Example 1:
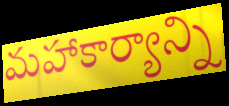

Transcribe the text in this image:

మహాకార్యాన్ని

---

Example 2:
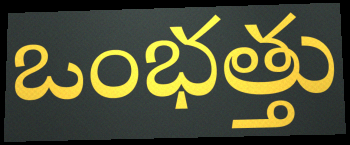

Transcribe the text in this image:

ఒంభత్తు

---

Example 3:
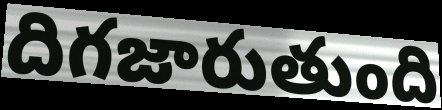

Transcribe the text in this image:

దిగజారుతుంది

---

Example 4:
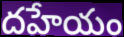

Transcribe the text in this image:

దహేయం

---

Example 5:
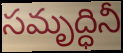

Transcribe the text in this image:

సమృద్ధినీ